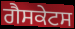
ਗੈਸਕੇਟਸ